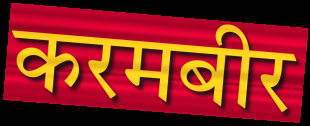
करमबीर